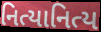
નિત્યાનિત્ય